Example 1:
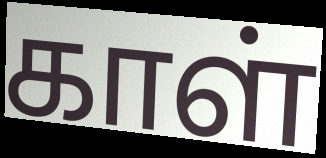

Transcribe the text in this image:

காள்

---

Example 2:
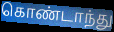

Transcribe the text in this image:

கொண்டாந்து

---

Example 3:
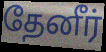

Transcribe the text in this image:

தேனீர்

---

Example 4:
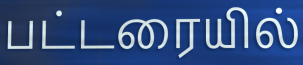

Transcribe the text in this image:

பட்டரையில்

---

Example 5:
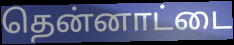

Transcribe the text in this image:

தென்னாட்டை